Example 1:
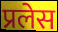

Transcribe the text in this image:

प्रलेस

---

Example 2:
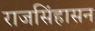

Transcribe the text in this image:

राजसिंहासन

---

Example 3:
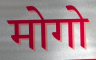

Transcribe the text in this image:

मोगो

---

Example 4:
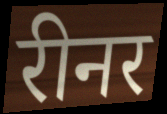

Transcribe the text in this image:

रीनर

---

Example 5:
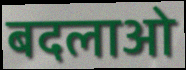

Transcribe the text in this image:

बदलाओ